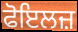
ਫੋਇਲਜ਼